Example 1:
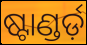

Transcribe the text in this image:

ଷ୍ଟାଣ୍ଡର୍ଡ଼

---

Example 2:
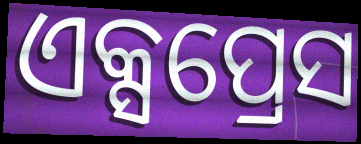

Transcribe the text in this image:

ଏକ୍ସପ୍ରେସ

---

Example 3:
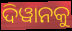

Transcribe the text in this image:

ଦିୱାନକୁ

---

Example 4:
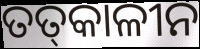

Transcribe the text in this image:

ତତ୍‍କାଳୀନ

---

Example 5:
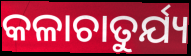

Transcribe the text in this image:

କଳାଚାତୁର୍ଯ୍ୟ